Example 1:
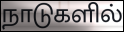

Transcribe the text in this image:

நாடுகளில்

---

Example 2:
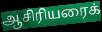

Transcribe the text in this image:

ஆசிரியரைக்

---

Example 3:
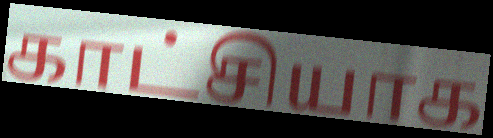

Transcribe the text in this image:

காட்சியாக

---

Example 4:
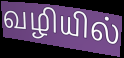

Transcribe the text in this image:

வழியில்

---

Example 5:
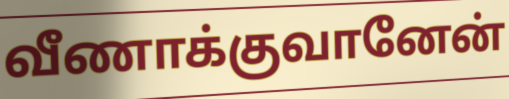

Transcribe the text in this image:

வீணாக்குவானேன்